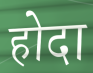
होदा